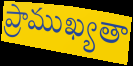
ప్రాముఖ్యతా